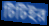
টিটিইর